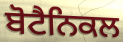
ਬੋਟੈਨਿਕਲ